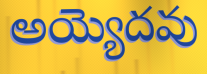
అయ్యెదవు